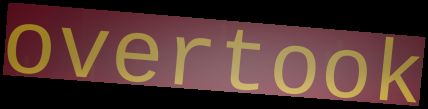
overtook